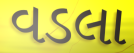
વડલા